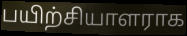
பயிற்சியாளராக